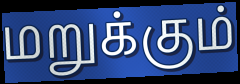
மறுக்கும்